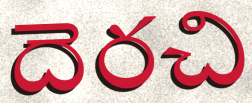
దెరచి